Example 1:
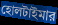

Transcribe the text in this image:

হোলটাইমার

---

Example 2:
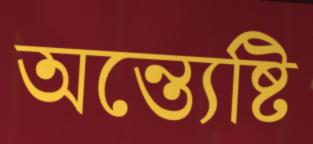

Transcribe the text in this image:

অন্ত্যেষ্টি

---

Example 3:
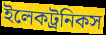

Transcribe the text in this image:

ইলেকট্রনিকস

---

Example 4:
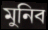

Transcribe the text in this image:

মুনিব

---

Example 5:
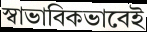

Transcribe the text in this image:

স্বাভাবিকভাবেই